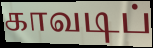
காவடிப்